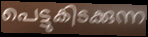
പെട്ടുകിടക്കുന്ന